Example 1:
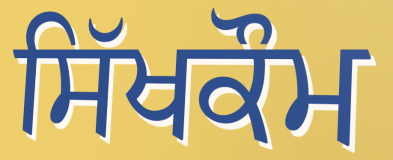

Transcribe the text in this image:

ਸਿੱਖਕੌਮ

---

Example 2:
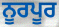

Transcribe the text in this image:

ਨੂਰਪੂਰ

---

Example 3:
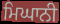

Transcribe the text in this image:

ਮਿਘਾਨੀ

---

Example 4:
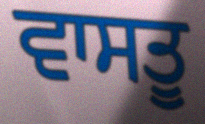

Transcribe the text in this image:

ਵਾਸਤੂ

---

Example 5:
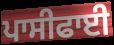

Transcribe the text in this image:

ਪਾਸੀਫਾਈ